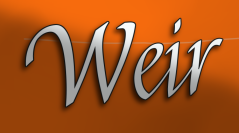
Weir